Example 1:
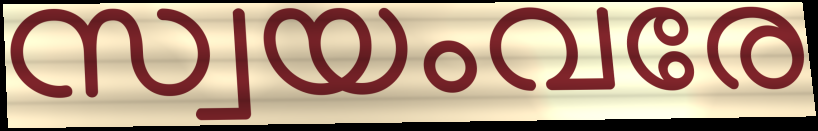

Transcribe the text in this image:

സ്വയംവരേ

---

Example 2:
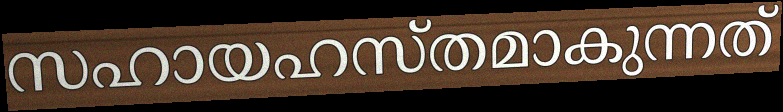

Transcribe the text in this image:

സഹായഹസ്തമാകുന്നത്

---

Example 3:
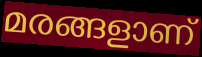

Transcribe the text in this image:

മരങ്ങളാണ്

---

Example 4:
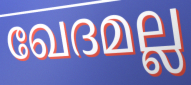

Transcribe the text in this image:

ഖേദമല്ല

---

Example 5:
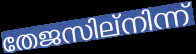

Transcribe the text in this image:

തേജസില്നിന്ന്